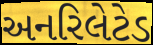
અનરિલેટેડ